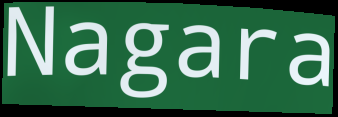
Nagara